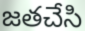
జతచేసి